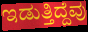
ಇಡುತ್ತಿದ್ದೆವು